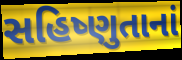
સહિષ્ણુતાનાં